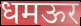
धमऊर